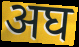
अघ